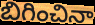
బిగించినా